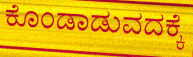
ಕೊಂಡಾಡುವದಕ್ಕೆ